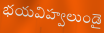
భయవిహ్వలుండై